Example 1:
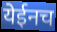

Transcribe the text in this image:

येईनच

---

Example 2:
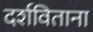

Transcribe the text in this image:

दर्शविताना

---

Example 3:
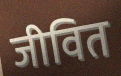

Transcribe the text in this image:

जीवित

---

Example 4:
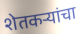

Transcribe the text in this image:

शेतकर्‍यांचा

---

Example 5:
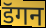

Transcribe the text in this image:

डॅगन